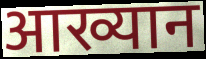
आख्यान